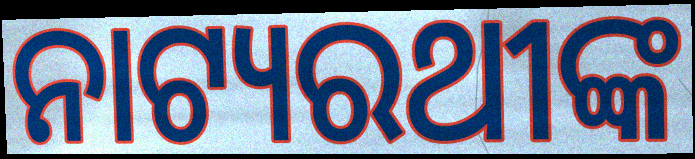
ନାଟ୍ୟରଥୀଙ୍କ